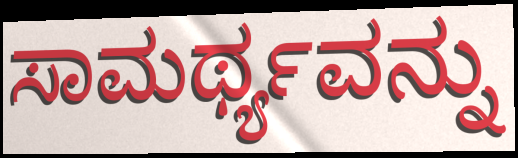
ಸಾಮರ್ಥ್ಯವನ್ನು